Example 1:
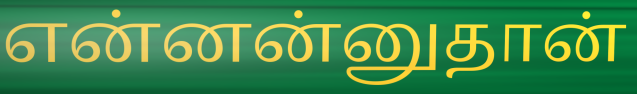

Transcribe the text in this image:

என்னன்னுதான்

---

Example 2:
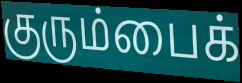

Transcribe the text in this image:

குரும்பைக்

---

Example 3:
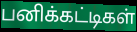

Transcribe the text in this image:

பனிக்கட்டிகள்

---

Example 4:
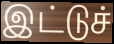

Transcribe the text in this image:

இட்டுச்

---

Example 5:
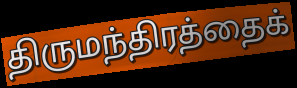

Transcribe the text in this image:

திருமந்திரத்தைக்